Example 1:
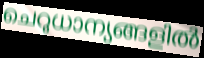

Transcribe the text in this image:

ചെറുധാന്യങ്ങളിൽ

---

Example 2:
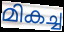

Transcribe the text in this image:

മികച്ച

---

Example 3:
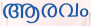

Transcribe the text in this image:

ആരവം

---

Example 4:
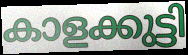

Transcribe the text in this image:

കാളക്കുട്ടി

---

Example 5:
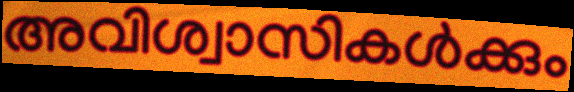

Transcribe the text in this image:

അവിശ്വാസികൾക്കും